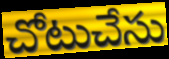
చోటుచేసు